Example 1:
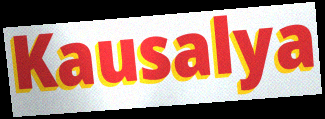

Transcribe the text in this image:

Kausalya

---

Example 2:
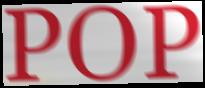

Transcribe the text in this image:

POP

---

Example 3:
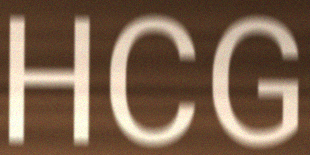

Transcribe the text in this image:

HCG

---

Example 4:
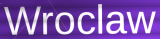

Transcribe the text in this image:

Wroclaw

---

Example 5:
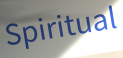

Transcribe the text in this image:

Spiritual